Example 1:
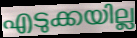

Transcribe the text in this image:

എടുക്കയില്ല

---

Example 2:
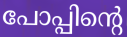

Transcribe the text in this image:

പോപ്പിന്റെ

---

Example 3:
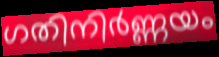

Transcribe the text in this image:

ഗതിനിർണ്ണയം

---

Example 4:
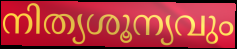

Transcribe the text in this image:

നിത്യശൂന്യവും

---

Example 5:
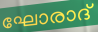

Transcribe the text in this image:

ഘോരാദ്